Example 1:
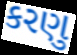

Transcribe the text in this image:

કરણુ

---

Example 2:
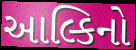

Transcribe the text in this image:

આલ્કિનો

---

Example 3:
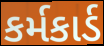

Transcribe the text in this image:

કર્મકાર્ડ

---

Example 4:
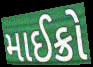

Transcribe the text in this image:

માઈક્રો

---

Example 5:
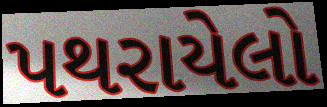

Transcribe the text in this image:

પથરાયેલો